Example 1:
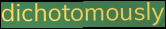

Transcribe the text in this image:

dichotomously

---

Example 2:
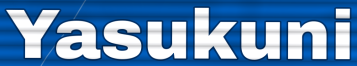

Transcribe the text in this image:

Yasukuni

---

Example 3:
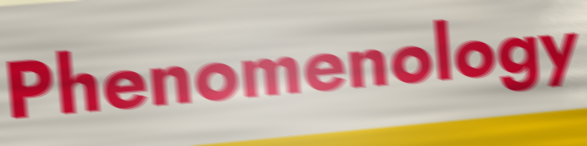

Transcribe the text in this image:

Phenomenology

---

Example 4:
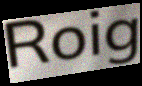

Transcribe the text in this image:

Roig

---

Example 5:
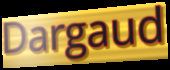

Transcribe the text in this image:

Dargaud